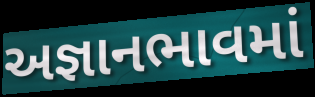
અજ્ઞાનભાવમાં